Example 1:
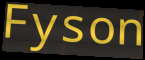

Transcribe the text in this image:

Fyson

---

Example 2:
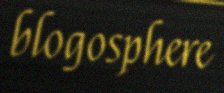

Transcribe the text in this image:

blogosphere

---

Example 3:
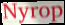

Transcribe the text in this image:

Nyrop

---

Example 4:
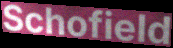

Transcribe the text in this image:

Schofield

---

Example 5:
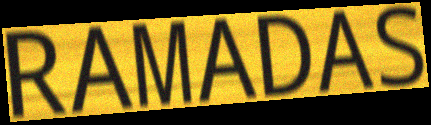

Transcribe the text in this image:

RAMADAS